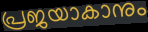
പ്രജയാകാനും